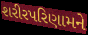
શરીરપરિણામને